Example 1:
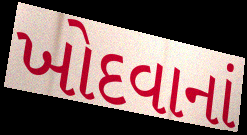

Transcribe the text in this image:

ખોદવાનાં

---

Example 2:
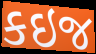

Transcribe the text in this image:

કઇજ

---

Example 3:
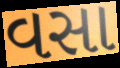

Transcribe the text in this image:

વસા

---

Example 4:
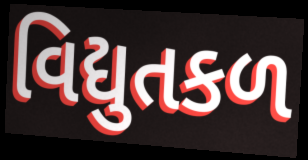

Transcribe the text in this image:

વિદ્યુતકળ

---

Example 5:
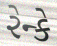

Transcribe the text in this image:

રેન્કે